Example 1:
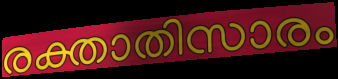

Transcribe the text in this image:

രക്താതിസാരം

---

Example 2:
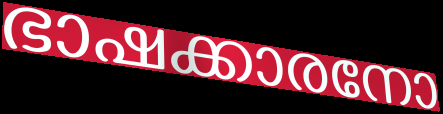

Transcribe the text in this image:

ഭാഷക്കാരനോ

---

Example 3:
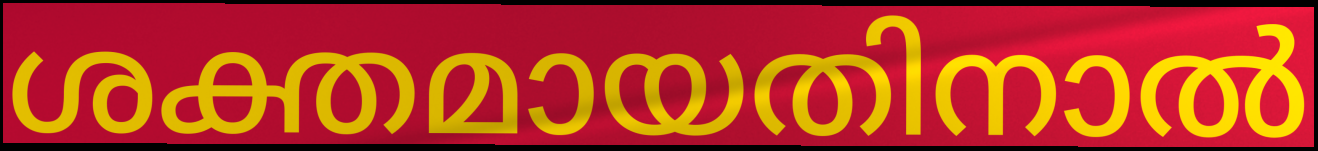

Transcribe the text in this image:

ശക്തമായതിനാൽ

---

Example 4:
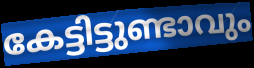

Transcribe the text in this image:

കേട്ടിട്ടുണ്ടാവും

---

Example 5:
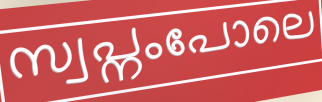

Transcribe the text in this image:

സ്വപ്നംപോലെ